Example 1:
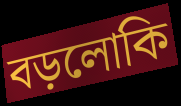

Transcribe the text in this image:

বড়লোকি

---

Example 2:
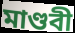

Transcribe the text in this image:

মাণ্ডবী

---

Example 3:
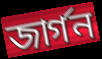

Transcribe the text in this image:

জার্গন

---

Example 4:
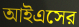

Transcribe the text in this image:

আইএসের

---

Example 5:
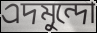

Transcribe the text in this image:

এদমুন্দো